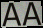
AA